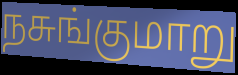
நசுங்குமாறு